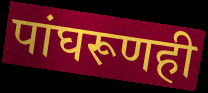
पांघरूणही